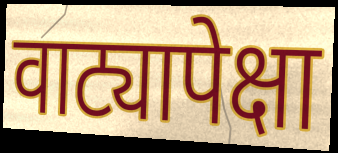
वाट्यापेक्षा